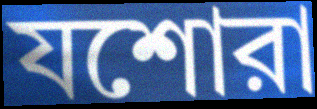
যশোরা